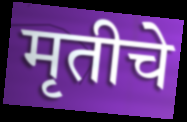
मृतीचे